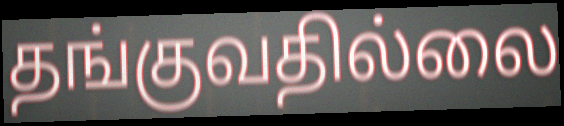
தங்குவதில்லை